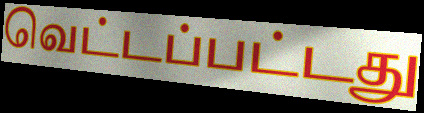
வெட்டப்பட்டது